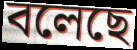
বলেছে